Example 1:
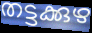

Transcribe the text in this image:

തട്ടക്കുഴ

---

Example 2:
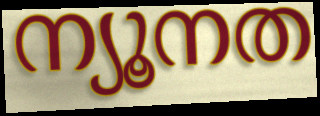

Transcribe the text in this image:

ന്യൂനത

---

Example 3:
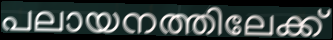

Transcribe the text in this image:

പലായനത്തിലേക്ക്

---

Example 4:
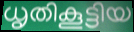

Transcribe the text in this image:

ധൃതികൂട്ടിയ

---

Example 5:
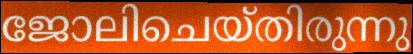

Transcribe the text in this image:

ജോലിചെയ്തിരുന്നു